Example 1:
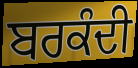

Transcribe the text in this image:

ਬਰਕੰਦੀ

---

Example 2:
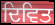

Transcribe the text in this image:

ਦਿਵਿਤ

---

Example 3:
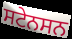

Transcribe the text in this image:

ਸਟੇਨਸਨ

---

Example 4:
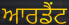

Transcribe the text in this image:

ਆਰਡੈਂਟ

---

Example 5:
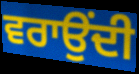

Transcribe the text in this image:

ਵਰਾਉਂਦੀ